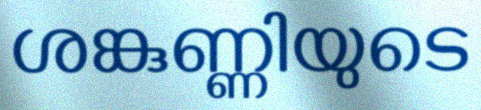
ശങ്കുണ്ണിയുടെ